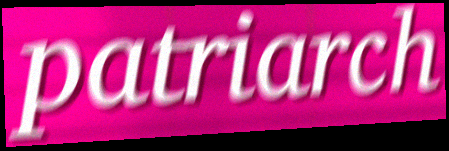
patriarch